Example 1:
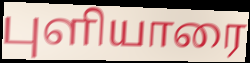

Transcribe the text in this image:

புளியாரை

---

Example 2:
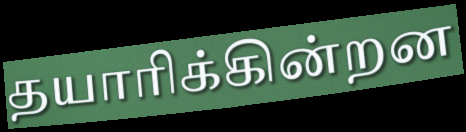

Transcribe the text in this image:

தயாரிக்கின்றன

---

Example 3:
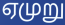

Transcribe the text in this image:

ஏமுறு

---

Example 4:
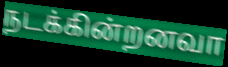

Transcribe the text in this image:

நடக்கின்றனவா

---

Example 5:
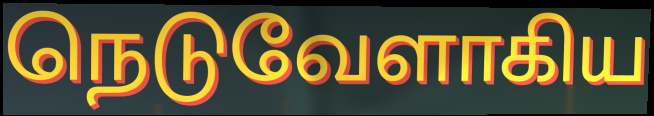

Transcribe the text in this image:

நெடுவேளாகிய